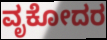
ವೃಕೋದರ